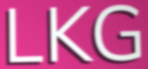
LKG